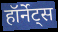
हॉर्नेट्स